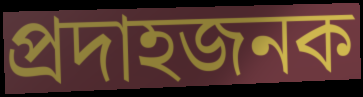
প্রদাহজনক